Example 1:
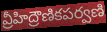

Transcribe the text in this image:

వ్రీహిద్రౌణికపర్వణి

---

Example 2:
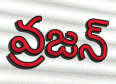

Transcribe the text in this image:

వ్రజన్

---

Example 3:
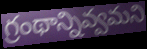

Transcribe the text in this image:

గ్రంథాన్నివ్వమని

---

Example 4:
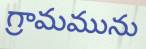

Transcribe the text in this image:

గ్రామమును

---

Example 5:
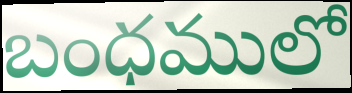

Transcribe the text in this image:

బంధములో